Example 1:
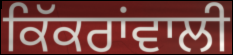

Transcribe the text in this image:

ਕਿੱਕਰਾਂਵਾਲੀ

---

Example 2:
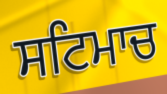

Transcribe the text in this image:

ਸਟਿਮਾਚ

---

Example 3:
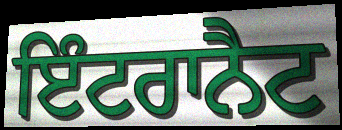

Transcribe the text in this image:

ਇੰਟਰਾਨੈਟ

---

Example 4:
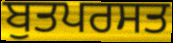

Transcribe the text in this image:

ਬੁਤਪਰਸਤ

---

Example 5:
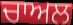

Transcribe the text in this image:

ਚਾਅਲ